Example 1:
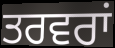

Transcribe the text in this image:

ਤਰਵਰਾਂ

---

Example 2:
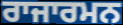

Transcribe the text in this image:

ਰਾਜਾਰਮਨ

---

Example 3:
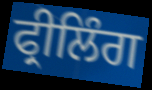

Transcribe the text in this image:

ਫ੍ਰੀਲਿੰਗ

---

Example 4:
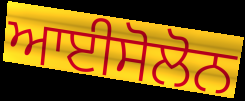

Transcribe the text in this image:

ਆਈਸੋਲੋਨ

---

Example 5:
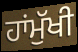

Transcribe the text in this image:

ਹਾਂਮੁੱਖੀ